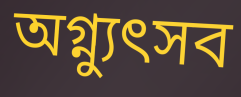
অগ্ন্যুৎসব